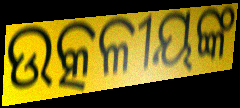
ଉତ୍କଳୀୟଙ୍କ